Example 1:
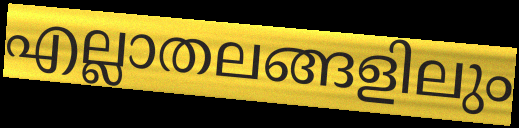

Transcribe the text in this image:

എല്ലാതലങ്ങളിലും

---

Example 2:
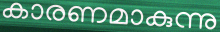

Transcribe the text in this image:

കാരണമാകുന്നു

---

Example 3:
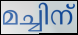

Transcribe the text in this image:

മച്ചിന്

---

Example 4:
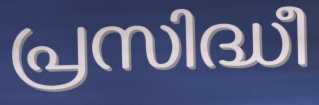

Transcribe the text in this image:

പ്രസിദ്ധീ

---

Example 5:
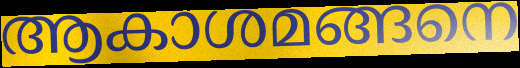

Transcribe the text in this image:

ആകാശമങ്ങനെ